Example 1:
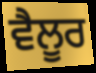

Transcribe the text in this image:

ਵੈਲੂਰ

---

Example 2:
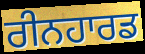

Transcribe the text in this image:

ਰੀਨਹਾਰਡ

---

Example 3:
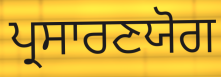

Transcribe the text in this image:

ਪ੍ਰਸਾਰਣਯੋਗ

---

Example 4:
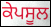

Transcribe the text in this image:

ਕੇਪਸੂਲ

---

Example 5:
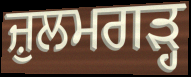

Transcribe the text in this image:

ਜ਼ੁਲਮਗੜ੍ਹ